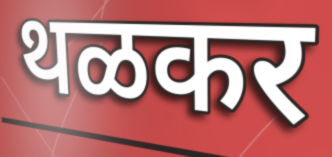
थळकर